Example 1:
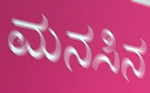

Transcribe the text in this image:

ಮನಸಿನ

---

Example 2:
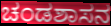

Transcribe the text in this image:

ಚಂಡಶಾಸನ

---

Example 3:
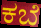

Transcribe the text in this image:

ಕಬೆ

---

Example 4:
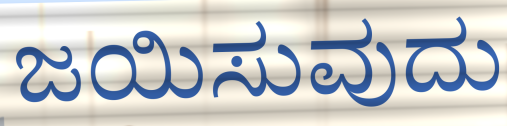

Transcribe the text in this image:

ಜಯಿಸುವುದು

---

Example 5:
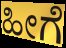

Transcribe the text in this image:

ಹೀಗೆ